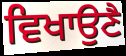
ਵਿਖਾਉਣੈ